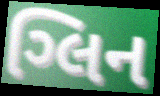
ગ્લિન